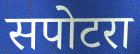
सपोटरा